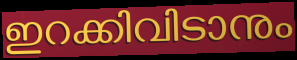
ഇറക്കിവിടാനും